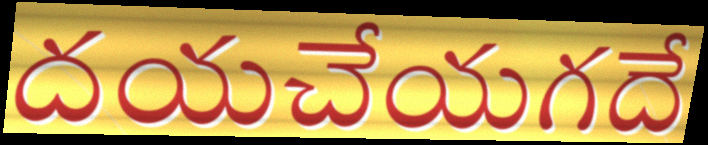
దయచేయగదే